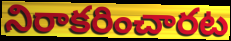
నిరాకరించారట